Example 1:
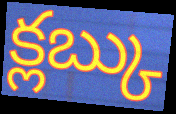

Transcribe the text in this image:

క్లబ్కు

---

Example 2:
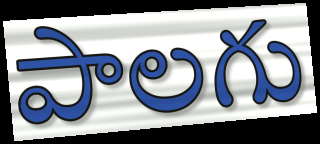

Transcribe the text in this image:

పాలగు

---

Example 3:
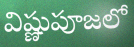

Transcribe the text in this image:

విష్ణుపూజలో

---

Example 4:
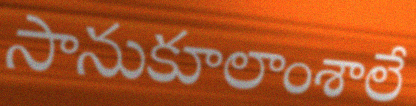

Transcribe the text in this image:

సానుకూలాంశాలే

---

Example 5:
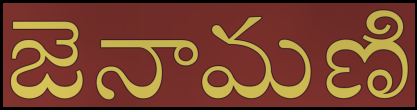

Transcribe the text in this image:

జెనామణి